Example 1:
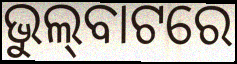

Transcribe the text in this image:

ଭୁଲ୍‌ବାଟରେ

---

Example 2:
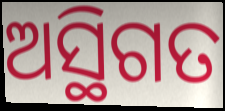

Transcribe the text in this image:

ଅସ୍ଥିଗତ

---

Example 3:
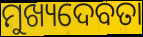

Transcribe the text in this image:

ମୁଖ୍ୟଦେବତା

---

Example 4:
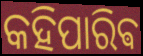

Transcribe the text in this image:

କହିପାରିଵ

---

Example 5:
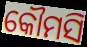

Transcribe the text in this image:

କୌମସି